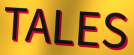
TALES